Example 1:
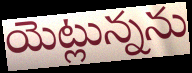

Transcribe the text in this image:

యెట్లున్నను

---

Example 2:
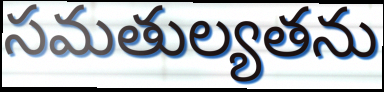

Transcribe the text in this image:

సమతుల్యతను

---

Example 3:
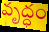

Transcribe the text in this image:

వృద్ధం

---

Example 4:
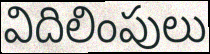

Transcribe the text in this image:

విదిలింపులు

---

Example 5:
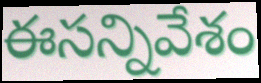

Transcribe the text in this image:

ఈసన్నివేశం